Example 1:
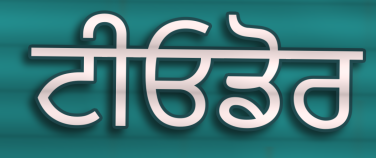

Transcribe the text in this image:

ਟੀਓਡੋਰ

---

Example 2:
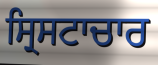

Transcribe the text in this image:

ਸ੍ਰਿਸਟਾਚਾਰ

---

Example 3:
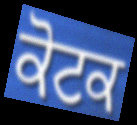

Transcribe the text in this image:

ਕੋਟਕ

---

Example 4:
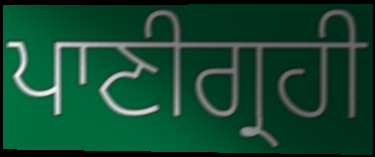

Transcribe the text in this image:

ਪਾਣੀਗ੍ਰਹੀ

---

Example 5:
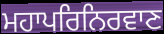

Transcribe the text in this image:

ਮਹਾਪਰਿਨਿਰਵਾਣ